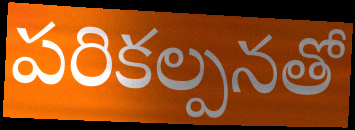
పరికల్పనతో